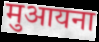
मुआयना